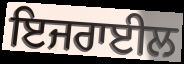
ਇਜਰਾਈਲ